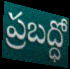
ప్రబద్ధో